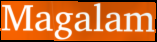
Magalam